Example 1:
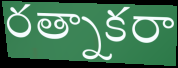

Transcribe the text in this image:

రత్నాకరా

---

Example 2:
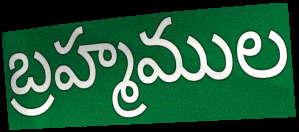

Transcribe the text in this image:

బ్రహ్మముల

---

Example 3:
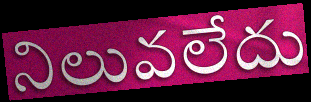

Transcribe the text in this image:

నిలువలేదు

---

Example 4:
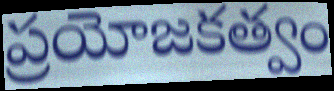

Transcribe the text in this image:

ప్రయోజకత్వం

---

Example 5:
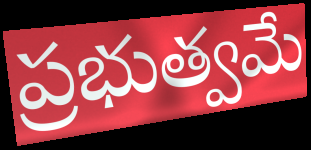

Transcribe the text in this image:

ప్రభుత్వమే